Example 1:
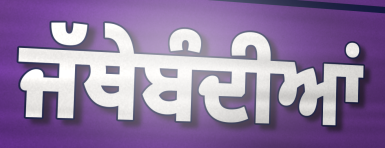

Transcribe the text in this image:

ਜੱਥੇਬੰਦੀਆਂ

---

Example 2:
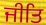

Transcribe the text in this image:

ਜੀਤਿ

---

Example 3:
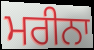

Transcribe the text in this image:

ਮਰੀਨਾ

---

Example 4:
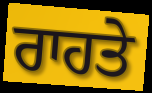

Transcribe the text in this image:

ਰਾਹਤੇ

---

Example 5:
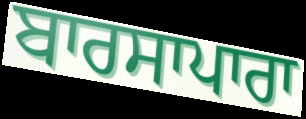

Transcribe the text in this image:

ਬਾਰਸਾਪਾਰਾ